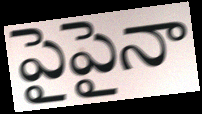
పైపైనా